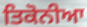
ਤਿਕੋਨੀਆ